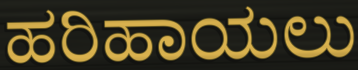
ಹರಿಹಾಯಲು